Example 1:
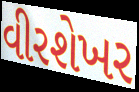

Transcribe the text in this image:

વીરશેખર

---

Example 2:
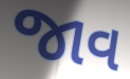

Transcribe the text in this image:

જાવ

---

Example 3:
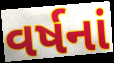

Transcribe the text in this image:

વર્ષનાં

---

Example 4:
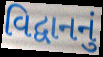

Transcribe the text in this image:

વિદ્વાનનું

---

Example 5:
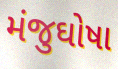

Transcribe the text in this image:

મંજુઘોષા